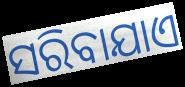
ସରିବାଯାଏ